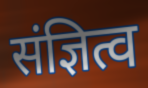
संज्ञित्व